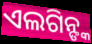
ଏଲଗିନ୍ଙ୍କ